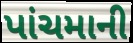
પાંચમાની